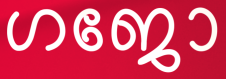
ഗജോ